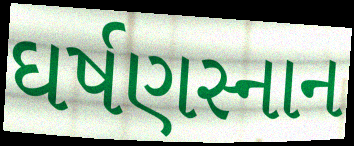
ઘર્ષણસ્નાન